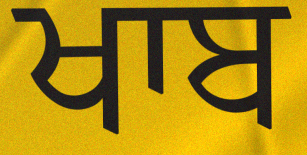
ਖਾਬ